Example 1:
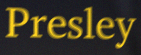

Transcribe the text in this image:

Presley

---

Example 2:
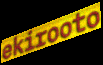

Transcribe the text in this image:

ekirooto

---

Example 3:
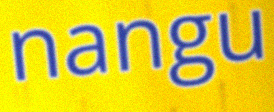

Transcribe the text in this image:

nangu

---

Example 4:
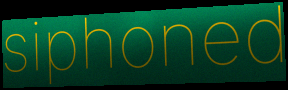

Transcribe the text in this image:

siphoned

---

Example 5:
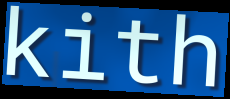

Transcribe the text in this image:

kith